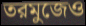
তরমুজেও